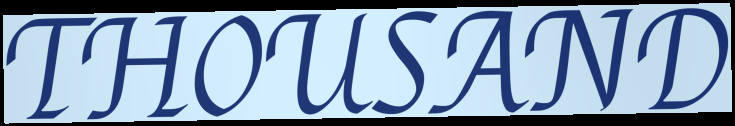
THOUSAND